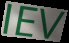
IEV